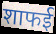
शाफई